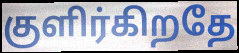
குளிர்கிறதே